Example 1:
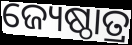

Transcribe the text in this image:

ଜ୍ୟେଷ୍ଠାତ୍ର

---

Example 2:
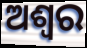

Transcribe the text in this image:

ଅଶ୍ୱର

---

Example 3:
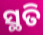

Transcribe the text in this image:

ସ୍ଥତି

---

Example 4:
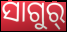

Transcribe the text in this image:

ସାଗୁର୍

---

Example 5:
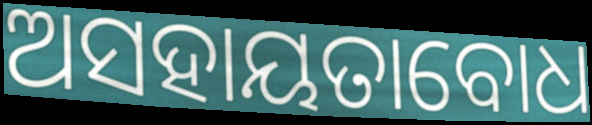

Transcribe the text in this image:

ଅସହାୟତାବୋଧ